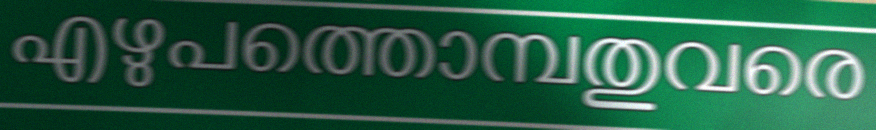
എഴുപത്തൊമ്പതുവരെ